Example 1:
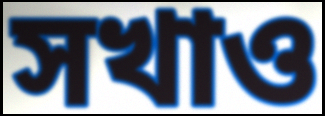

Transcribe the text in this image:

সখাও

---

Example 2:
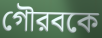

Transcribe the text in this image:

গৌরবকে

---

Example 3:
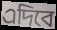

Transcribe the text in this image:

এদিবে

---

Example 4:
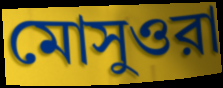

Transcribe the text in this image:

মোসুওরা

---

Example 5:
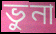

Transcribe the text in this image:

ভুনা